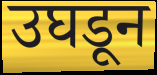
उघडून